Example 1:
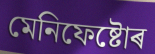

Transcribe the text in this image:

মেনিফেষ্টোৰ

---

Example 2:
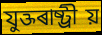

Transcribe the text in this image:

যুক্তৰাষ্ট্ৰীয়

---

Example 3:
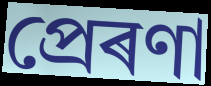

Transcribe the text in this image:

প্ৰেৰণা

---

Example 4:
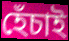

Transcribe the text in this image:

হেঁচাই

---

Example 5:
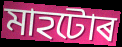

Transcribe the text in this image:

মাহটোৰ